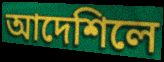
আদেশিলে